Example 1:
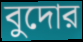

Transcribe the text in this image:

বুদোর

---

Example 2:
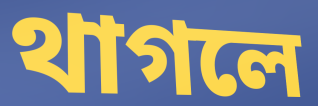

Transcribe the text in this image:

থাগলে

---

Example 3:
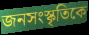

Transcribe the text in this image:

জনসংস্কৃতিকে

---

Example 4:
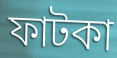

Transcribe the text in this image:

ফাটকা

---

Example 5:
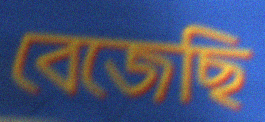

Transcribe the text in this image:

বেজেছি